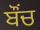
ਬੌਂਚ